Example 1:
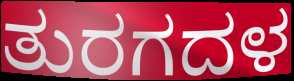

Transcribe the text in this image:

ತುರಗದಳ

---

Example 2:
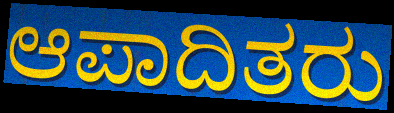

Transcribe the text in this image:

ಆಪಾದಿತರು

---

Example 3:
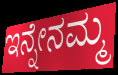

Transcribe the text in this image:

ಇನ್ನೇನಮ್ಮ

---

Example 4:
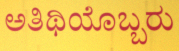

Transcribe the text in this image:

ಅತಿಥಿಯೊಬ್ಬರು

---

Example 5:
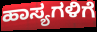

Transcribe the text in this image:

ಹಾಸ್ಯಗಳಿಗೆ